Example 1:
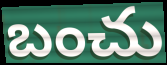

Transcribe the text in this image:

బంచు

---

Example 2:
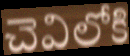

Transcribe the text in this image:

చెవిలోకి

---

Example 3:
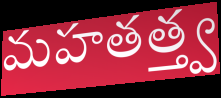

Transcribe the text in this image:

మహతత్త్వ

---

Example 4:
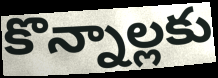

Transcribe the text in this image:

కొన్నాల్లకు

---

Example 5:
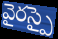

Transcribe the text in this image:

వైరస్పై